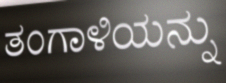
ತಂಗಾಳಿಯನ್ನು